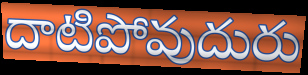
దాటిపోవుదురు